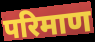
परिमाण